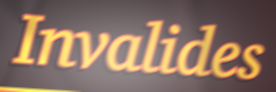
Invalides